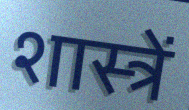
शास्त्रें